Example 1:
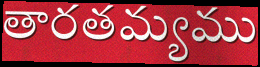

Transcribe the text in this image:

తారతమ్యము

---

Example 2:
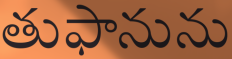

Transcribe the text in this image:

తుఫానును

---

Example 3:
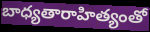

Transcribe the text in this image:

బాధ్యతారాహిత్యంతో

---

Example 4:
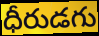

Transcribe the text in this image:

ధీరుడగు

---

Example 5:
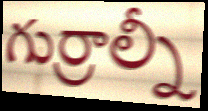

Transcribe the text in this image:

గుర్రాల్నీ